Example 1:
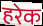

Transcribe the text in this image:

हरेक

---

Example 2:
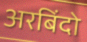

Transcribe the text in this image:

अरबिंदो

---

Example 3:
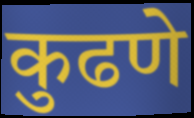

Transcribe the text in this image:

कुढणे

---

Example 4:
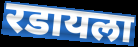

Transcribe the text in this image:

रडायला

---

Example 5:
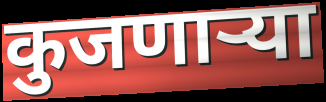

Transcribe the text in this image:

कुजणाऱ्या